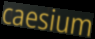
caesium